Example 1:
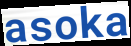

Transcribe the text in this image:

asoka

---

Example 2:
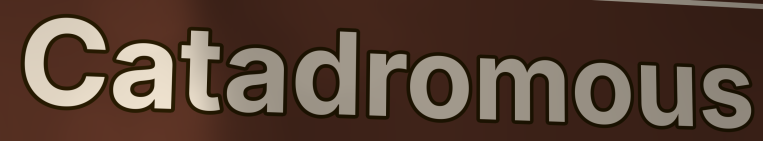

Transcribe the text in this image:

Catadromous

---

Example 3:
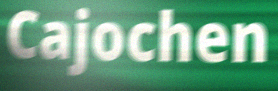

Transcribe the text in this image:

Cajochen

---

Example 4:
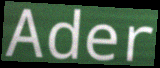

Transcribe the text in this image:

Ader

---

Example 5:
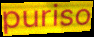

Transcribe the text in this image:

puriso